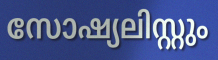
സോഷ്യലിസ്റ്റും